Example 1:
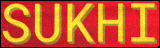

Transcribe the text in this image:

SUKHI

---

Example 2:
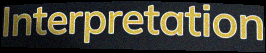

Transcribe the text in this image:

Interpretation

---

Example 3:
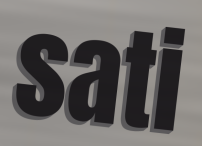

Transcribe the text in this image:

sati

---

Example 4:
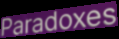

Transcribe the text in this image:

Paradoxes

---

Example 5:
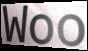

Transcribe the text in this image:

Woo